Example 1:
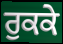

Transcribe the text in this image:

ਰੁਕਕੇ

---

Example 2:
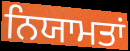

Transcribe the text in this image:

ਨਿਯਾਮਤਾਂ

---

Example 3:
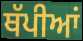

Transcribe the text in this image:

ਥੱਪੀਆਂ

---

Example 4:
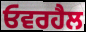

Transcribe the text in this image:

ਓਵਰਹੈਲ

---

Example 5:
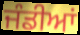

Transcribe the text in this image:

ਜੰਡੀਆਂ